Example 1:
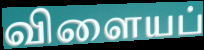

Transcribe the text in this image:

விளையப்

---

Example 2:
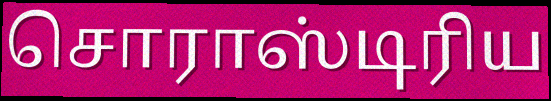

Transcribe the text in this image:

சொராஸ்டிரிய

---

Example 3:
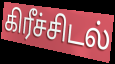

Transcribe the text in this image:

கிரீச்சிடல்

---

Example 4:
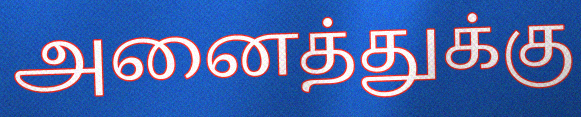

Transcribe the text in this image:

அனைத்துக்கு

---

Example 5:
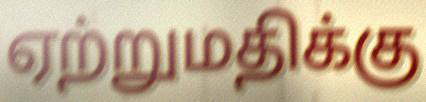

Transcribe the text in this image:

ஏற்றுமதிக்கு